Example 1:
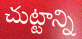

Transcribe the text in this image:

చుట్టాన్ని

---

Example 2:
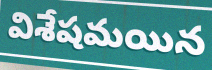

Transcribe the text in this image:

విశేషమయిన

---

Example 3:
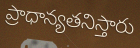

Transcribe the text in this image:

ప్రాధాన్యతనిస్తారు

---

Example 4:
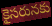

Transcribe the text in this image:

కైసరునకు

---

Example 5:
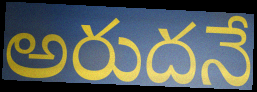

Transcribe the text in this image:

అరుదనే